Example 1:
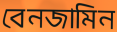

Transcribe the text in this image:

বেনজামিন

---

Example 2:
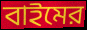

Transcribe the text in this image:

বাইমের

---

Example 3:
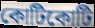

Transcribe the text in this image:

কোটিকোটি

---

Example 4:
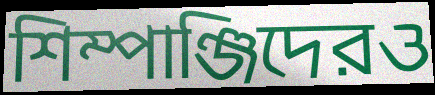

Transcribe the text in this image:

শিম্পাঞ্জিদেরও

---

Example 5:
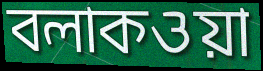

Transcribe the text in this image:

বলাকওয়া